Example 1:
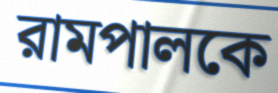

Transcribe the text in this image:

রামপালকে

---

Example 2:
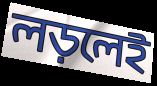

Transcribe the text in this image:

লড়লেই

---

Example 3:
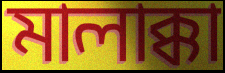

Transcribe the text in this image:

মালাক্কা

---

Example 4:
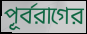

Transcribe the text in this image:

পূর্বরাগের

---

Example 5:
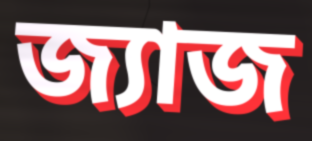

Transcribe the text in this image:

জ্যাজ